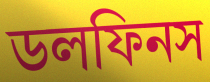
ডলফিনস